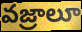
వజ్రాలూ